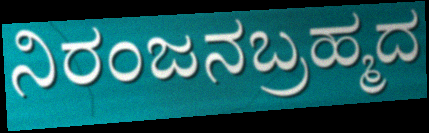
ನಿರಂಜನಬ್ರಹ್ಮದ